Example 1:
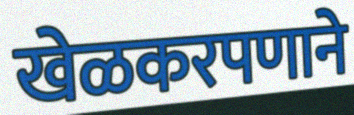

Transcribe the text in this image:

खेळकरपणाने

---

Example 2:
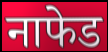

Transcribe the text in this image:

नाफेड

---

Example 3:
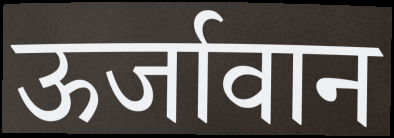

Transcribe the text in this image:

ऊर्जावान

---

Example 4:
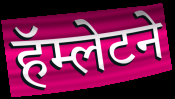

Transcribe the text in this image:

हॅम्लेटने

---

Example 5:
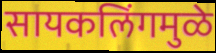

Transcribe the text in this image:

सायकलिंगमुळे